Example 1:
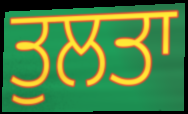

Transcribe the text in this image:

ਤੁਲਤਾ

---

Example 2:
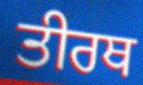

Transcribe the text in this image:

ਤੀਰਥ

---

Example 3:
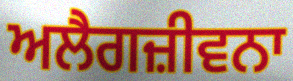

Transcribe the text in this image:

ਅਲੈਗਜ਼ੀਵਨਾ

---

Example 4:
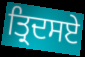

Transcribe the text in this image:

ਤ੍ਰਿਦਸਏ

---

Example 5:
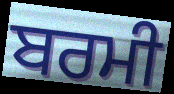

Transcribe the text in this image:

ਬਰਮੀ